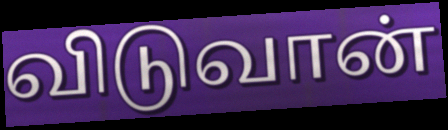
விடுவான்